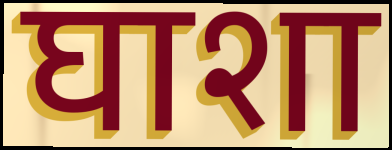
घाशा